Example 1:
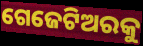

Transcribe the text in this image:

ଗେଜେଟିଅରକୁ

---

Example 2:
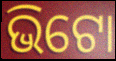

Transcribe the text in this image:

ଭିଟୋ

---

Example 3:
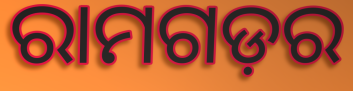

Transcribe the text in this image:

ରାମଗଡ଼ର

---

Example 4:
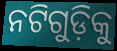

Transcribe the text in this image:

ନଟିଗୁଡ଼ିକୁ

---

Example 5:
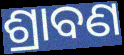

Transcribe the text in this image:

ଶ୍ରାବଣ